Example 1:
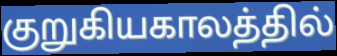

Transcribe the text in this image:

குறுகியகாலத்தில்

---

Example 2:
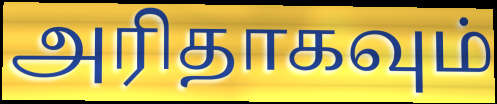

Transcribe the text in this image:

அரிதாகவும்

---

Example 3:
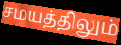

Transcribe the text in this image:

சமயத்திலும்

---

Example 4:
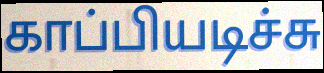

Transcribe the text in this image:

காப்பியடிச்சு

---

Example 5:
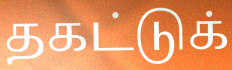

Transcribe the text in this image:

தகட்டுக்